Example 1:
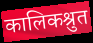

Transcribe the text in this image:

कालिकश्रुत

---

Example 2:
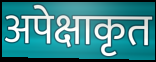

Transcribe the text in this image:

अपेक्षाकृत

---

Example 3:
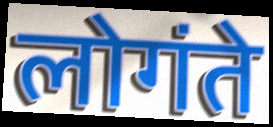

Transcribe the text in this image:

लोगंते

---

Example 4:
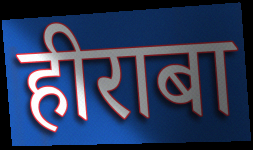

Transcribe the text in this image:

हीराबा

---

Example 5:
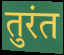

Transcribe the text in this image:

तुरंत